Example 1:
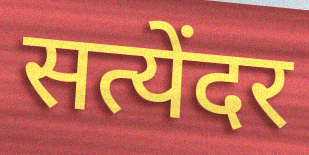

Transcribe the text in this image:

सत्येंदर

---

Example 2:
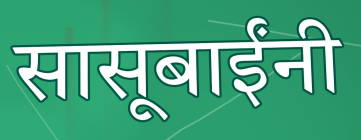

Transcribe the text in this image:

सासूबाईंनी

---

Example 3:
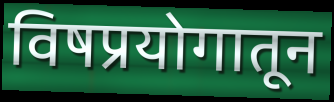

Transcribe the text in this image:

विषप्रयोगातून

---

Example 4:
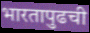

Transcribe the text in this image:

भारतापुढची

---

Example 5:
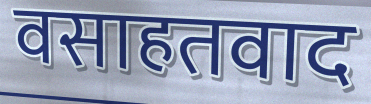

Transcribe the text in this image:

वसाहतवाद